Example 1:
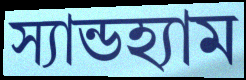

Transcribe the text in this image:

স্যান্ডহ্যাম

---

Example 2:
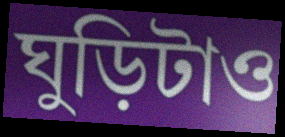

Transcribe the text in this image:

ঘুড়িটাও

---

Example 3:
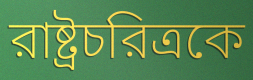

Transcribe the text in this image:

রাষ্ট্রচরিত্রকে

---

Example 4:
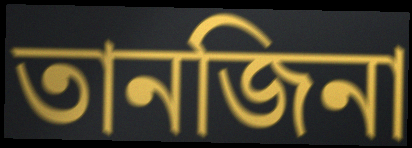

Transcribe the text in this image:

তানজিনা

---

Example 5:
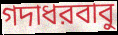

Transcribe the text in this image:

গদাধরবাবু